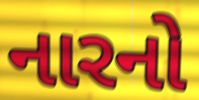
નારનો